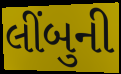
લીંબુની